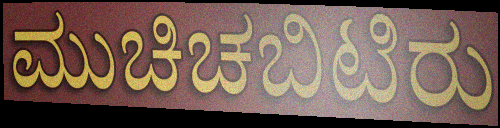
ಮುಚಿಚಬಿಟಿರು